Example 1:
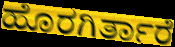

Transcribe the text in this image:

ಹೊರಗಿರ್ತಾರೆ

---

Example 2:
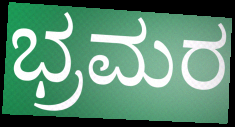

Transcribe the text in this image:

ಭ್ರಮರ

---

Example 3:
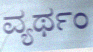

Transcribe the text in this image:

ವ್ಯರ್ಥಂ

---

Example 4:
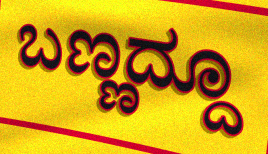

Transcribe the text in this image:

ಬಣ್ಣದ್ದೂ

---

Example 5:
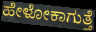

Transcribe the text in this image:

ಹೇಳೋಕಾಗುತ್ತೆ